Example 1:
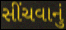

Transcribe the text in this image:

સીંચવાનું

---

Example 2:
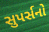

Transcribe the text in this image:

સુપર્સનો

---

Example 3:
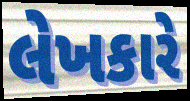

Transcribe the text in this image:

લેખકારે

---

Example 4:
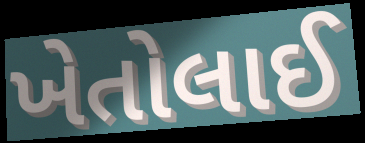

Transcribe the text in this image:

ખેતોલાઈ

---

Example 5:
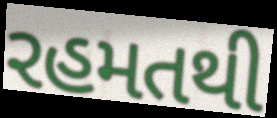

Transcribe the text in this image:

રહમતથી